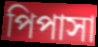
পিপাসা